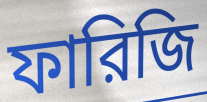
ফারিজি